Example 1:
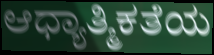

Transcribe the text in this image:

ಆಧ್ಯಾತ್ಮಿಕತೆಯ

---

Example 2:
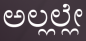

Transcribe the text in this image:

ಅಲ್ಲಲ್ಲೇ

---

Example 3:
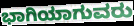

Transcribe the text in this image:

ಭಾಗಿಯಾಗುವರು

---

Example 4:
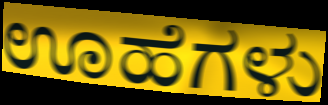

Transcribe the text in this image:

ಊಹೆಗಳು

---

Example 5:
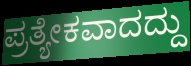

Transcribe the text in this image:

ಪ್ರತ್ಯೇಕವಾದದ್ದು